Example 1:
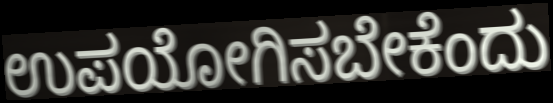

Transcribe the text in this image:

ಉಪಯೋಗಿಸಬೇಕೆಂದು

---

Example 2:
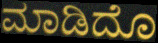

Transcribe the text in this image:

ಮಾಡಿದೊ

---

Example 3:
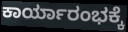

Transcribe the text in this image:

ಕಾರ್ಯಾರಂಭಕ್ಕೆ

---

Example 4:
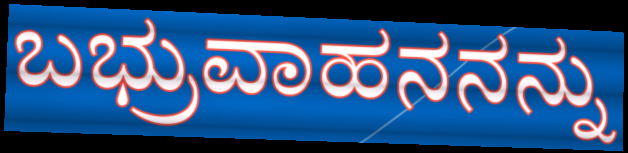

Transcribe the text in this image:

ಬಭ್ರುವಾಹನನನ್ನು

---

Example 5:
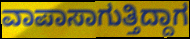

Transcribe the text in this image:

ವಾಪಾಸಾಗುತ್ತಿದ್ದಾಗ